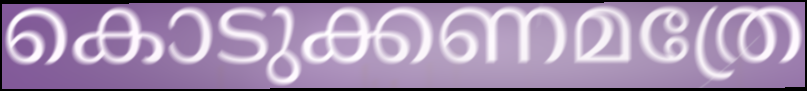
കൊടുക്കണമത്രേ